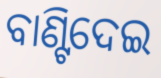
ବାଣ୍ଟିଦେଇ